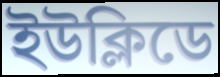
ইউক্লিডে